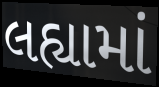
લહ્યામાં